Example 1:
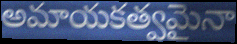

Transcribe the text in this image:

అమాయకత్వమైనా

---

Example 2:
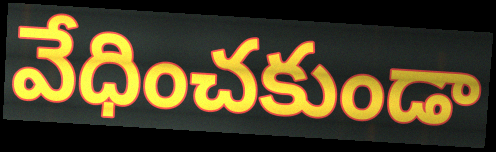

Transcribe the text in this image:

వేధించకుండా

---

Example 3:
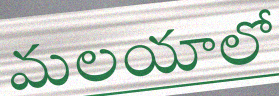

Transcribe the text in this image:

మలయాలో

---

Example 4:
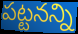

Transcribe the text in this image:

పట్టనన్ని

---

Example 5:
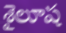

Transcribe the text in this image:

శైలూష